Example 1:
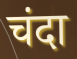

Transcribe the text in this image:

चंदा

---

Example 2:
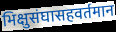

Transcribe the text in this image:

भिक्षुसंघासहवर्तमान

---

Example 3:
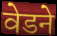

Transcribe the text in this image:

वेडने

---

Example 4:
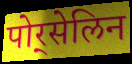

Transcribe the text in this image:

पोर्सेलिन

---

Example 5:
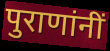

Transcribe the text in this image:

पुराणांनीं